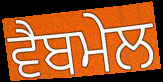
ਵੈਬਮੇਲ